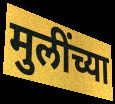
मुलींच्या